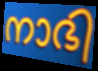
നാഭി